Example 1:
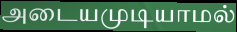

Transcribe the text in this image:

அடையமுடியாமல்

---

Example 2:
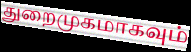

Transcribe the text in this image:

துறைமுகமாகவும்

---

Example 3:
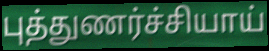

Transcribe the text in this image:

புத்துணர்ச்சியாய்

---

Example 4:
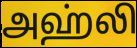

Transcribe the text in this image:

அஹ்லி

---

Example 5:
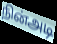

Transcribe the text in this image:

நின்அடி